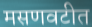
मसणवटीत